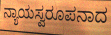
ನ್ಯಾಯಸ್ವರೂಪನಾದ